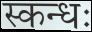
स्कन्धः